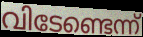
വിടേണ്ടെന്ന്